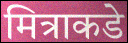
मित्राकडे